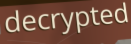
decrypted